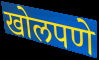
खोलपणे